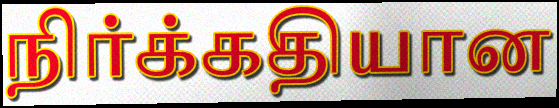
நிர்க்கதியான